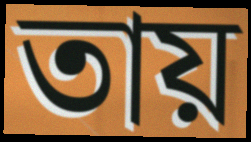
তায়